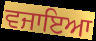
ਵਜਾਇਆ